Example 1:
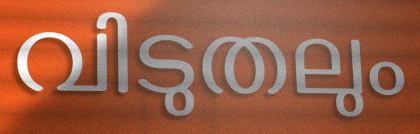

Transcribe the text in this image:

വിടുതലും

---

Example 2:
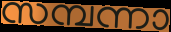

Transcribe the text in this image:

സമ്പന്നാ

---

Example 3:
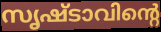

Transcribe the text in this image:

സൃഷ്ടാവിന്റെ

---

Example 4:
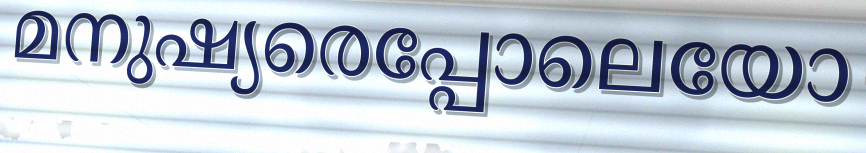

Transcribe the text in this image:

മനുഷ്യരെപ്പോലെയോ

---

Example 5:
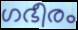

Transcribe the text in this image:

ഗഭീരം